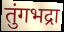
तुंगभद्रा